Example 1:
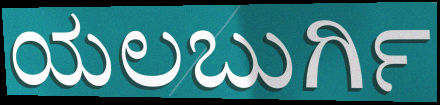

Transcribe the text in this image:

ಯಲಬುರ್ಗಿ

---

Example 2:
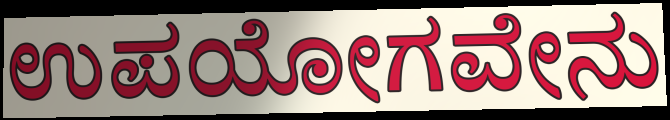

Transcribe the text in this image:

ಉಪಯೋಗವೇನು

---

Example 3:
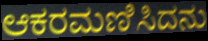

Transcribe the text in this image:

ಆಕರಮಣಿಸಿದನು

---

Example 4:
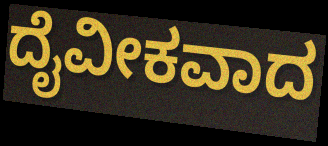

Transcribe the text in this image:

ದೈವೀಕವಾದ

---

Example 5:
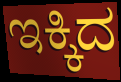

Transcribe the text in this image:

ಇಕ್ಕಿದ